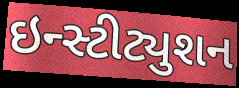
ઇન્સ્ટીટ્યુશન